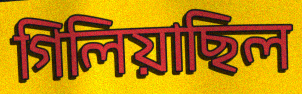
গিলিয়াছিল